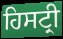
ਹਿਸਟ੍ਰੀ